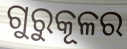
ଗୁରୁକୂଳର